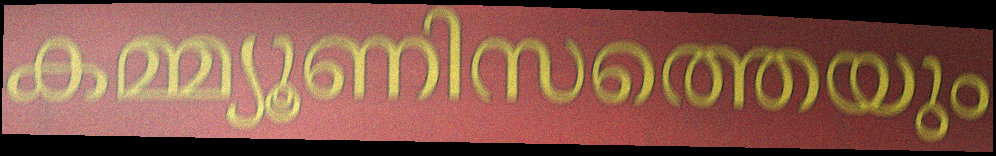
കമ്മ്യൂണിസത്തെയും